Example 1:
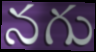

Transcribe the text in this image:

నగు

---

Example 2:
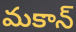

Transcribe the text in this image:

మకాన్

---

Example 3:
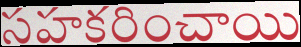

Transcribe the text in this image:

సహకరించాయి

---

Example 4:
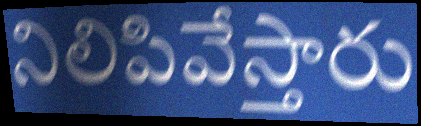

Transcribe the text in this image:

నిలిపివేస్తారు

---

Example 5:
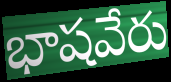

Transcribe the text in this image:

భాషవేరు